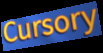
Cursory